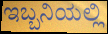
ಇಬ್ಬನಿಯಲ್ಲಿ